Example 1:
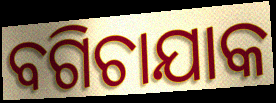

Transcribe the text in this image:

ବଗିଚାଯାକ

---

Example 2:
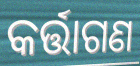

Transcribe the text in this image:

କର୍ତ୍ତାଗଣ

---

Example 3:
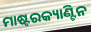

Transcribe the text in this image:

ମାଷ୍ଟରକ୍ୟାଣ୍ଟିନ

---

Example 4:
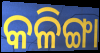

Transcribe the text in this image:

କଳିଙ୍ଗା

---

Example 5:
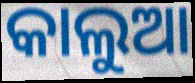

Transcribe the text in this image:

କାଲୁଆ